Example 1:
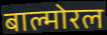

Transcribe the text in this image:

बाल्‍मोरल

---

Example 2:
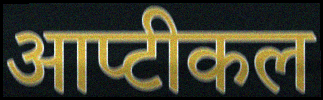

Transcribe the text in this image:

आप्टीकल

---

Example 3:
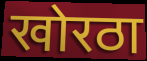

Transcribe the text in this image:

खोरठा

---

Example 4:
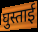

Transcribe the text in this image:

घुस्ताई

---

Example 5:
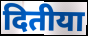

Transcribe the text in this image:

दितीया